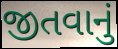
જીતવાનું